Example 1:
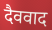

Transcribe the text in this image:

दैववाद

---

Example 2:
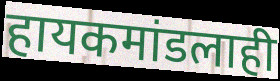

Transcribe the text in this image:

हायकमांडलाही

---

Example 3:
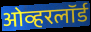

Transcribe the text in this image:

ओव्हरलॉर्ड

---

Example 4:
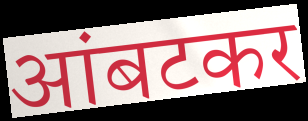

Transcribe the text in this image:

आंबटकर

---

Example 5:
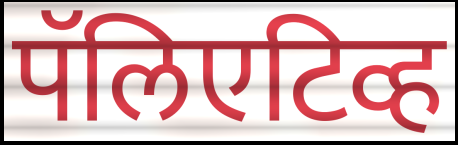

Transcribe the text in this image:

पॅलिएटिव्ह